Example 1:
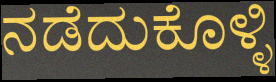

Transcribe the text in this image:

ನಡೆದುಕೊಳ್ಳಿ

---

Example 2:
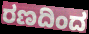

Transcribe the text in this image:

ರಣದಿಂದ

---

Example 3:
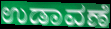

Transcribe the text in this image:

ಉಡಾವಣೆ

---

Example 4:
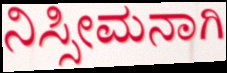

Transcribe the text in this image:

ನಿಸ್ಸೀಮನಾಗಿ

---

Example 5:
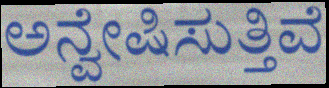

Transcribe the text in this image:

ಅನ್ವೇಷಿಸುತ್ತಿವೆ